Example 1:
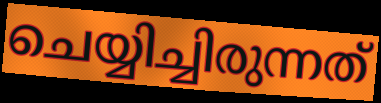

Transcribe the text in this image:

ചെയ്യിച്ചിരുന്നത്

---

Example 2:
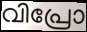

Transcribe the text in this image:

വിപ്രോ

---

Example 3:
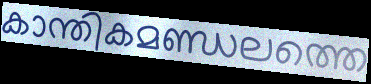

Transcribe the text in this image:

കാന്തികമണ്ഡലത്തെ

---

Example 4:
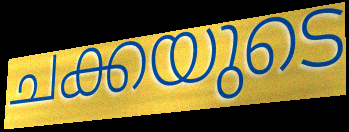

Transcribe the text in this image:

ചക്കയുടെ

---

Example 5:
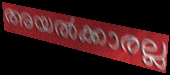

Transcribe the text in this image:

അയൽക്കാരല്ല